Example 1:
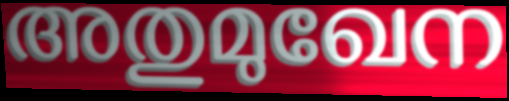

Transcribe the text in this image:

അതുമുഖേന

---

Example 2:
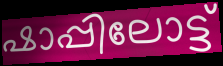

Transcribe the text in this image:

ഷാപ്പിലോട്ട്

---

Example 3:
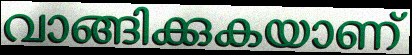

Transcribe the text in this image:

വാങ്ങിക്കുകയാണ്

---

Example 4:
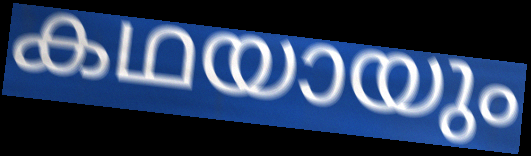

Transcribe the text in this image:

കഥയായും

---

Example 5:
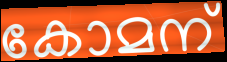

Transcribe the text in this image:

കോമന്